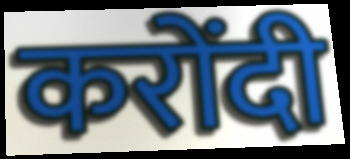
करोंदी